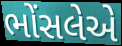
ભોંસલેએ